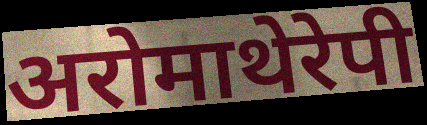
अरोमाथेरेपी